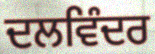
ਦਲਵਿੰਦਰ